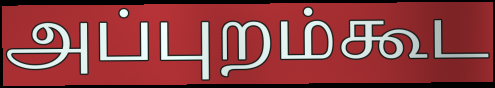
அப்புறம்கூட